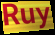
Ruy